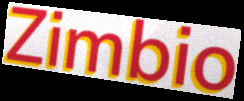
Zimbio